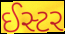
ઈસ્ટર